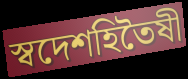
স্বদেশহিতৈষী